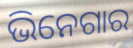
ଭିନେଗାର